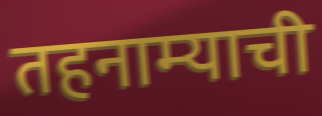
तहनाम्याची